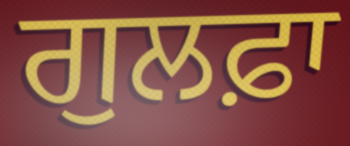
ਗੁਲਫ਼ਾ